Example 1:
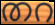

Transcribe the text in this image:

തറ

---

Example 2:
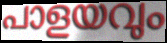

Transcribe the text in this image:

പാളയവും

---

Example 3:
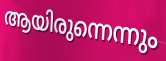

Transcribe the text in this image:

ആയിരുന്നെന്നും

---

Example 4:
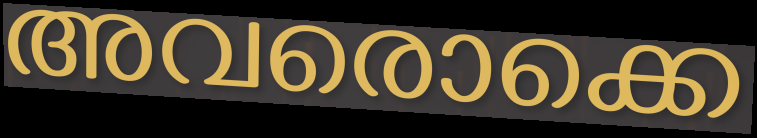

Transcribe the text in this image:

അവരൊക്കെ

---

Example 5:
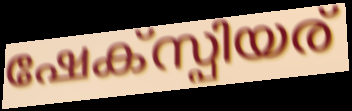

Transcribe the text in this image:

ഷേക്സ്പിയര്